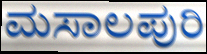
ಮಸಾಲಪುರಿ